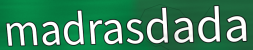
madrasdada